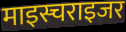
माइस्चराइजर